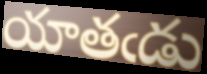
యాతఁడు